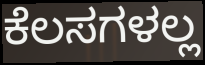
ಕೆಲಸಗಳಲ್ಲ